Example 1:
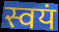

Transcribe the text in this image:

स्वयं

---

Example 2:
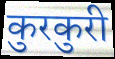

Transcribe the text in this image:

कुरकुरी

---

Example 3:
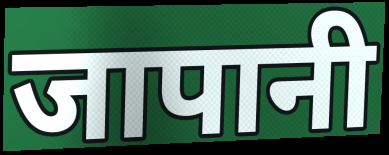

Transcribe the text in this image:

जापानी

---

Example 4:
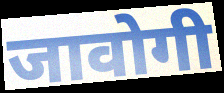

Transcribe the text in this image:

जावोगी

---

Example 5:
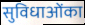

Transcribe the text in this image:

सुविधाओंका